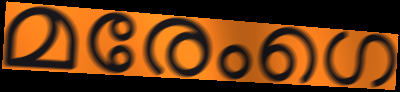
മരേംഗെ